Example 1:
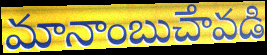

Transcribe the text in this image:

మానాంబుౘావడి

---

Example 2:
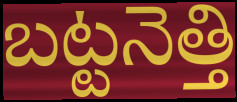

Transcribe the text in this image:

బట్టనెత్తి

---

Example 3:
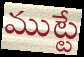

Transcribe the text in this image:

ముట్టే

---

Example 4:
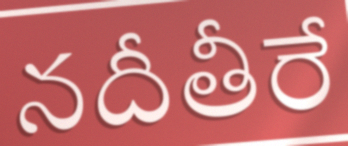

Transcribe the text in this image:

నదీతీరే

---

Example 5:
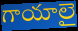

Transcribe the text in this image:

గాయాలై